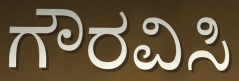
ಗೌರವಿಸಿ